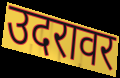
उदरावर